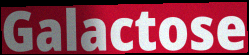
Galactose